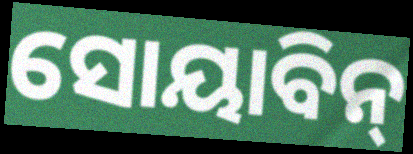
ସୋୟାବିନ୍